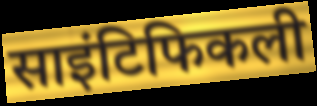
साइंटिफिकली